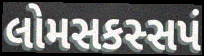
લોમસકસ્સપં